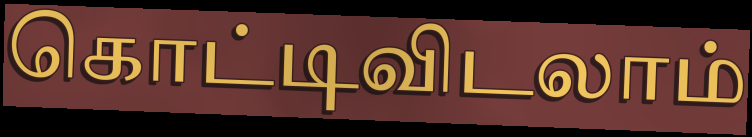
கொட்டிவிடலாம்